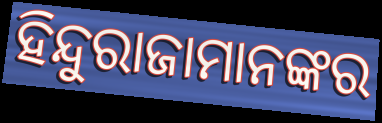
ହିନ୍ଦୁରାଜାମାନଙ୍କର